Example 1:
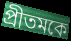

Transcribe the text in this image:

প্রীতমকে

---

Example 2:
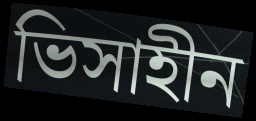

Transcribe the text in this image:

ভিসাহীন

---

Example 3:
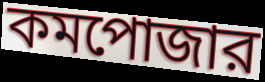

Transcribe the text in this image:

কমপোজার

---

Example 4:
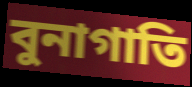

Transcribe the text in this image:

বুনাগাতি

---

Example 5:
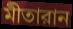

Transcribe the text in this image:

মীতারান